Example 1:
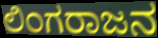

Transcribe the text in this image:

ಲಿಂಗರಾಜನ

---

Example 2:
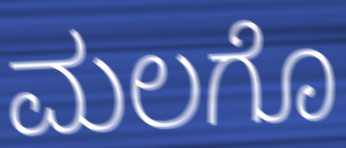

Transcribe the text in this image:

ಮಲಗೊ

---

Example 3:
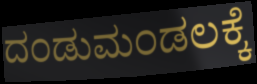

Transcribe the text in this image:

ದಂಡುಮಂಡಲಕ್ಕೆ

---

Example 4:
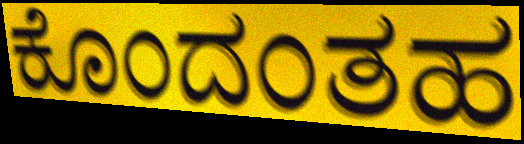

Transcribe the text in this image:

ಕೊಂದಂತಹ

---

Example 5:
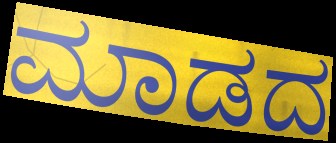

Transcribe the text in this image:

ಮಾಡದ